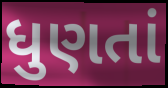
ધુણતાં